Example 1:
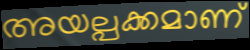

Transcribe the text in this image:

അയല്പക്കമാണ്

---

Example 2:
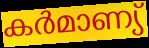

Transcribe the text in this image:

കർമാണ്യ്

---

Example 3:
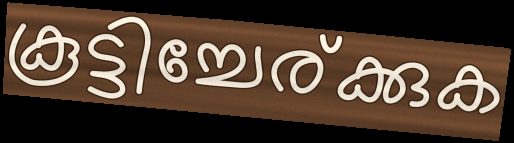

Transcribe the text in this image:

കൂട്ടിച്ചേര്ക്കുക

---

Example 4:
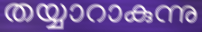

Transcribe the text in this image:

തയ്യാറാകുന്നു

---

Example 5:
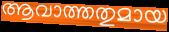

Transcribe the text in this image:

ആവാത്തതുമായ